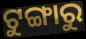
ଟୁଙ୍ଗାରୁ